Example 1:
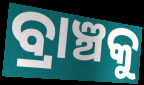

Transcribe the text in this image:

ବ୍ରାଞ୍ଚକୁ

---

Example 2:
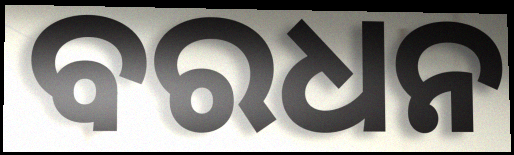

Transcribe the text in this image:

ବରଧନ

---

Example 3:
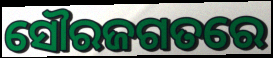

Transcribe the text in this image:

ସୌରଜଗତରେ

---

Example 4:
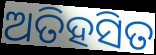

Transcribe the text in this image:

ଅତିହସିତ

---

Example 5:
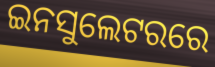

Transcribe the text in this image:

ଇନସୁଲେଟରରେ